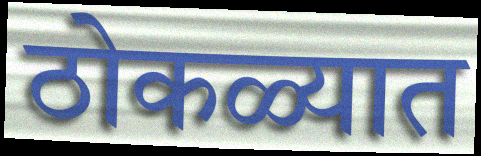
ठोकळ्यात